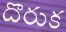
దొరుక